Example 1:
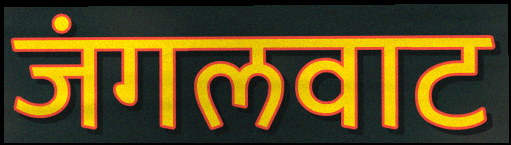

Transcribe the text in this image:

जंगलवाट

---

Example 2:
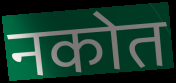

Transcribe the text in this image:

नकोत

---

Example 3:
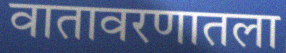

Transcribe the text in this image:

वातावरणातला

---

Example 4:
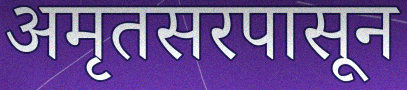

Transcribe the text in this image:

अमृतसरपासून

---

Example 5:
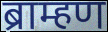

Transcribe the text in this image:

ब्राम्हण